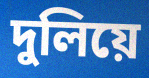
দুলিয়ে